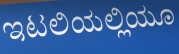
ಇಟಲಿಯಲ್ಲಿಯೂ